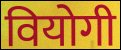
वियोगी